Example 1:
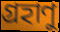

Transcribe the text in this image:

গ্রহাণু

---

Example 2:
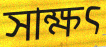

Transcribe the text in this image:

সাক্ষৎ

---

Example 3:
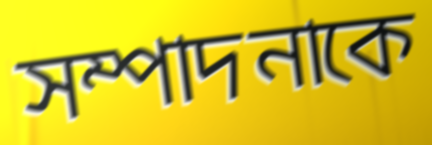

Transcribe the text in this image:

সম্পাদনাকে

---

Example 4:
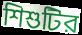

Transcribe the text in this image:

শিশুটির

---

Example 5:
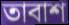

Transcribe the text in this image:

তাবাশ